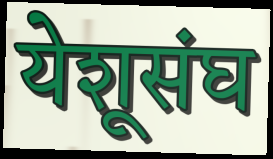
येशूसंघ